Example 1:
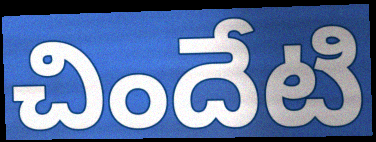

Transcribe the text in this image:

చిందేటి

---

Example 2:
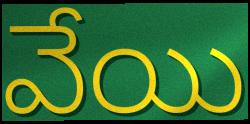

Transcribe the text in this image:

వేయి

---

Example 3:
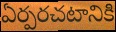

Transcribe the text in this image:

ఏర్పరచటానికి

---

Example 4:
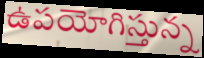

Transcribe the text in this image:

ఉపయోగిస్తున్న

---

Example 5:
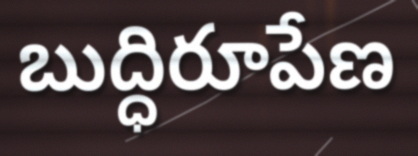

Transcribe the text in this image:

బుద్ధిరూపేణ